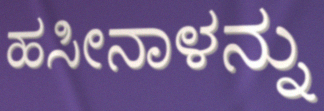
ಹಸೀನಾಳನ್ನು